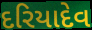
દરિયાદેવ